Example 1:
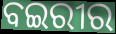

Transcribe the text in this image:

ବଇରୀର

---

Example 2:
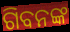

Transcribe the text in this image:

ଗିବନଙ୍କ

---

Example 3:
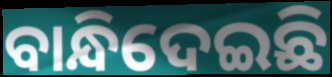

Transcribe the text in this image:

ବାନ୍ଧିଦେଇଛି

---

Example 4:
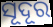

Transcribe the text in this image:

ସୂଦୂର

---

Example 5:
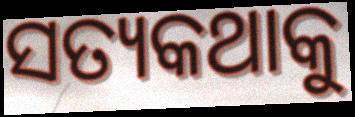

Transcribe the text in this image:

ସତ୍ୟକଥାକୁ